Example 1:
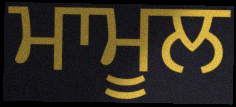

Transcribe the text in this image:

ਮਾਮੂਲ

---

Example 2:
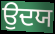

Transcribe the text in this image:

ਉਦਯ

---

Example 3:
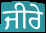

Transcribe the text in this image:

ਜੀਰੇ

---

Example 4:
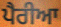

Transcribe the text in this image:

ਪੈਰੀਆ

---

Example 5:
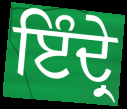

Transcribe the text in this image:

ਇੰਦ੍ਰੇ